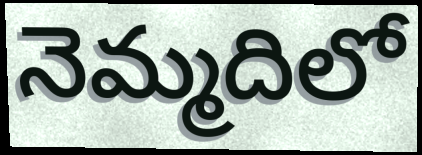
నెమ్మదిలో